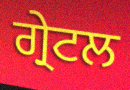
ਗ੍ਰੇਟਲ